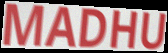
MADHU